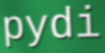
pydi